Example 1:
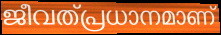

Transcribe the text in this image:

ജീവത്പ്രധാനമാണ്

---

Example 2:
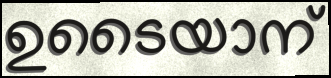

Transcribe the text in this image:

ഉടൈയാന്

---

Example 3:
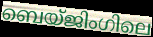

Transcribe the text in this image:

ബെയ്ജിംഗിലെ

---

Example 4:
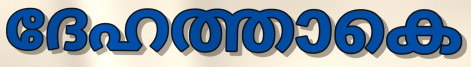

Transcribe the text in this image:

ദേഹത്താകെ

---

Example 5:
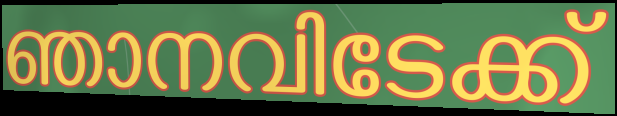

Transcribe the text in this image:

ഞാനവിടേക്ക്